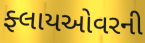
ફ્લાયઓવરની